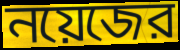
নয়েজের